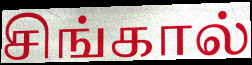
சிங்கால்